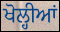
ਖੋਲ੍ਹੀਆਂ